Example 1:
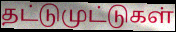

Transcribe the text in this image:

தட்டுமுட்டுகள்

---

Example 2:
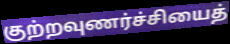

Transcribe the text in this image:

குற்றவுணர்ச்சியைத்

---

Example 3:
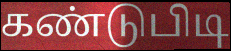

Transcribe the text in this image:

கண்டுபிடி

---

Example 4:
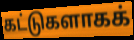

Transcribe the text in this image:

கட்டுகளாகக்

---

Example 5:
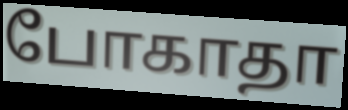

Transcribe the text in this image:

போகாதா